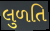
લુળતિ